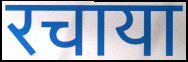
रचाया